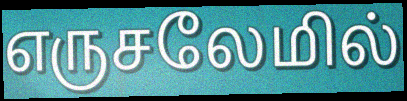
எருசலேமில்